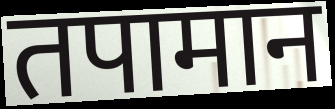
तपामान